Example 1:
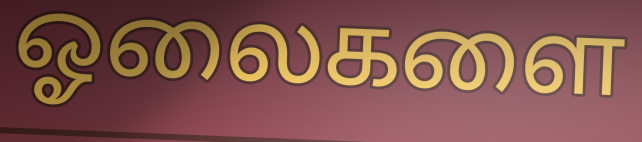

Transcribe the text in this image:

ஓலைகளை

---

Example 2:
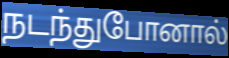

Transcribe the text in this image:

நடந்துபோனால்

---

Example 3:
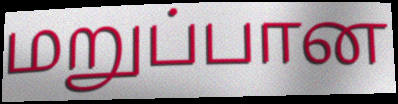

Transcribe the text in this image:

மறுப்பான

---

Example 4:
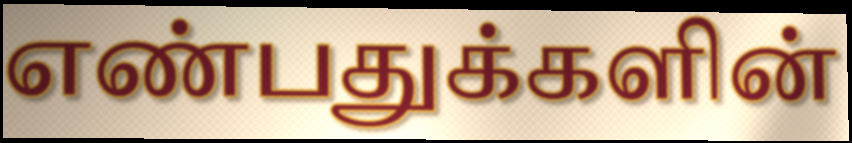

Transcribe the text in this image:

எண்பதுக்களின்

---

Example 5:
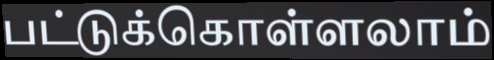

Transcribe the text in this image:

பட்டுக்கொள்ளலாம்